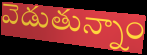
వెడుతున్నాం